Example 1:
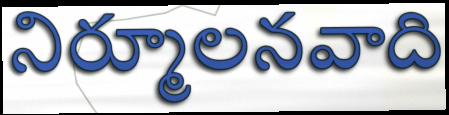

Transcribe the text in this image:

నిర్మూలనవాది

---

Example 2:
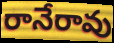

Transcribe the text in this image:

రానేరావు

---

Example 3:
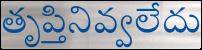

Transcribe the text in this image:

తృప్తినివ్వలేదు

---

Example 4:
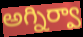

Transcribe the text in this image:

అగ్నిర్వా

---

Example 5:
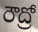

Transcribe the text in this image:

రౌద్రో